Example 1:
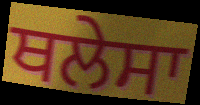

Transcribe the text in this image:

ਥਲੇਸਾ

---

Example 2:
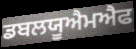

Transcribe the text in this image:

ਡਬਲਯੂਐਮਐਫ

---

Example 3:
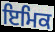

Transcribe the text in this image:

ਇਮਿਕ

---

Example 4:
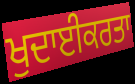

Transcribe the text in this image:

ਖੁਦਾਈਕਰਤਾ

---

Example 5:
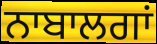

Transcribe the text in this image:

ਨਾਬਾਲਗਾਂ